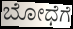
ಬೋಧೆಗೆ